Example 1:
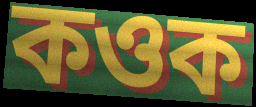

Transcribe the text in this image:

কওক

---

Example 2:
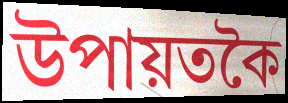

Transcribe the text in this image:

উপায়তকৈ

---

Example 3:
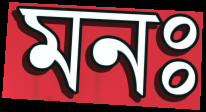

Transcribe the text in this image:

মনঃ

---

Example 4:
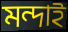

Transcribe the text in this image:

মন্দাই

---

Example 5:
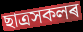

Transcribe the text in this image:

ছাত্ৰসকলৰ